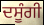
ਦਸੂੰਗੀ